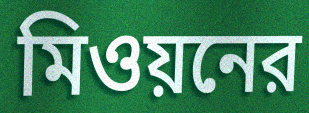
মিওয়নের